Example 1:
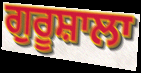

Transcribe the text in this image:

ਗੁਰੂਸ਼ਾਲਾ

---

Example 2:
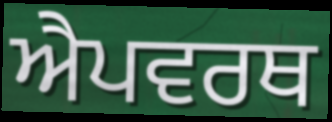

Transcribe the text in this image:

ਐਪਵਰਥ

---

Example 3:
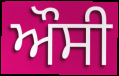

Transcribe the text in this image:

ਔਸੀ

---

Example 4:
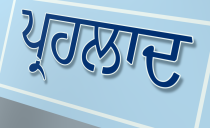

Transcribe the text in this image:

ਪ੍ਰਹਲਾਦ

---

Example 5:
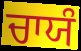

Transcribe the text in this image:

ਚਾਯੰ